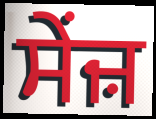
ਸੇਂਜ਼